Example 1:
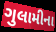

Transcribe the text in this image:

ગુલામીના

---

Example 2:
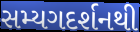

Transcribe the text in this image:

સમ્યગદર્શનથી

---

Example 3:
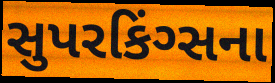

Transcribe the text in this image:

સુપરકિંગ્સના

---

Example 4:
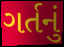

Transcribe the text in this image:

ગર્તનું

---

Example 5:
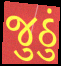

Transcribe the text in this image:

જુઠું